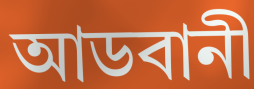
আডবানী